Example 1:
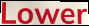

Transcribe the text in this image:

Lower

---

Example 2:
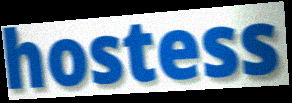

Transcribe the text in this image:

hostess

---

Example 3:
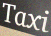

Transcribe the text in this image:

Taxi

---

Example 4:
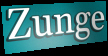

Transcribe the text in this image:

Zunge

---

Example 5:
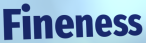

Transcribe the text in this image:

Fineness